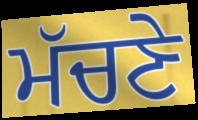
ਮੱਚਣੇ